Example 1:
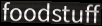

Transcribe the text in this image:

foodstuff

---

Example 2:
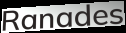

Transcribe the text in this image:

Ranades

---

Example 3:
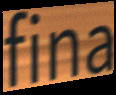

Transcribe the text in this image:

fina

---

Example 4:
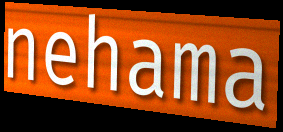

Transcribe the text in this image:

nehama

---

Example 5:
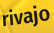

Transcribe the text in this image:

rivajo